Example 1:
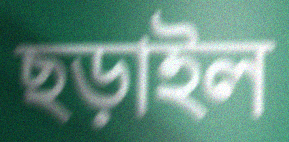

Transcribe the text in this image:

ছড়াইল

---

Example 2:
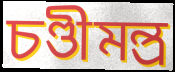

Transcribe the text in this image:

চণ্ডীমন্ত্র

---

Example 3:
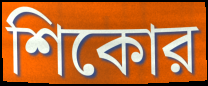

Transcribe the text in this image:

শিকোর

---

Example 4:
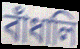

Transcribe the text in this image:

বাঁধালি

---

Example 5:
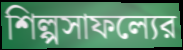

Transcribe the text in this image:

শিল্পসাফল্যের